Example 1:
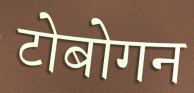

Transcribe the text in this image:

टोबोगन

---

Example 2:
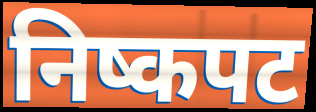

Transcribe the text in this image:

निष्कपट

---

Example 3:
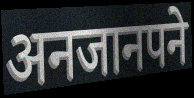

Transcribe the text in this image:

अनजानपने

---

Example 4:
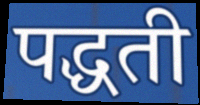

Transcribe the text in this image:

पद्धती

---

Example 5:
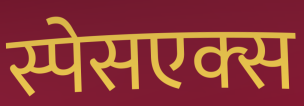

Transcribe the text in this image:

स्‍पेसएक्‍स